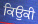
ਕਿਉਕੀ